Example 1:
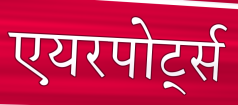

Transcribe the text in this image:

एयरपोर्ट्स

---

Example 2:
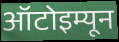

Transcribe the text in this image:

ऑटोइम्‍यून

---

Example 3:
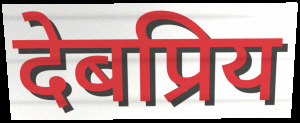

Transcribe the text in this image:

देबप्रिय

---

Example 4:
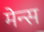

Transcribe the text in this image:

मेन्स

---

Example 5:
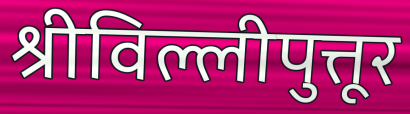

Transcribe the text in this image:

श्रीविल्लीपुत्तूर